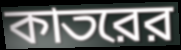
কাতরের